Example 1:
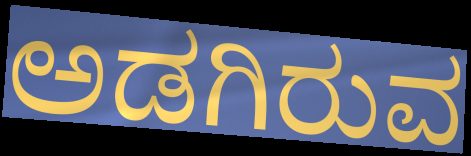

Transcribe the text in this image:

ಅಡಗಿರುವ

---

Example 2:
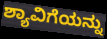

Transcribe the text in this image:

ಶ್ಯಾವಿಗೆಯನ್ನು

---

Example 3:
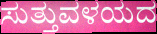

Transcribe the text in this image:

ಸುತ್ತುವಳಯದ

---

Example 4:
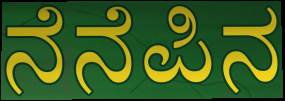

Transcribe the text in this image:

ನೆನೆಪಿನ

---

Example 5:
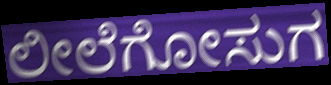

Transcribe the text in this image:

ಲೀಲೆಗೋಸುಗ